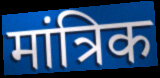
मांत्रिक